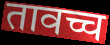
तावच्च